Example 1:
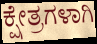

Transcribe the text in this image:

ಕ್ಷೇತ್ರಗಳಾಗಿ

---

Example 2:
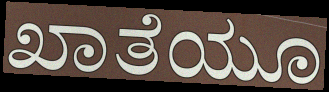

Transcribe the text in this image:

ಖಾತೆಯೂ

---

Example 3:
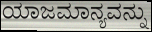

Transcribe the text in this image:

ಯಾಜಮಾನ್ಯವನ್ನು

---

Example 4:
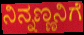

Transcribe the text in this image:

ನಿನ್ನಣ್ಣನಿಗೆ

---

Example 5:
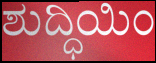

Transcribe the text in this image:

ಶುದ್ಧಿಯಿಂ